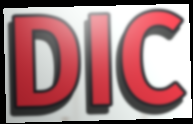
DIC